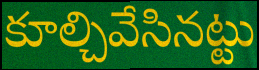
కూల్చివేసినట్టు